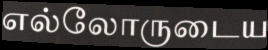
எல்லோருடைய